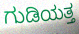
ಗುಡಿಯತ್ತ